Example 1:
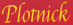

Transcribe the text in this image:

Plotnick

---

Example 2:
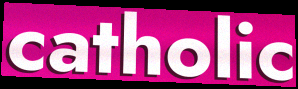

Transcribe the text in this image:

catholic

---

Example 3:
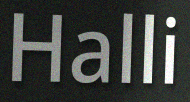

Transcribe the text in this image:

Halli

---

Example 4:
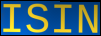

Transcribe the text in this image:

ISIN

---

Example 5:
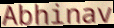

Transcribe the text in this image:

Abhinav